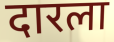
दारला